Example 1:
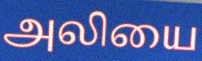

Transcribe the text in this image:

அலியை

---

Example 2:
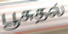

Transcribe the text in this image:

பூசுதல்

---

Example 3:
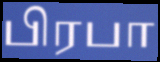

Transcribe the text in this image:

பிரபா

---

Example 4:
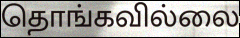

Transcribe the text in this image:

தொங்கவில்லை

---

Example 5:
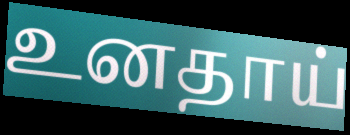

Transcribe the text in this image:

உனதாய்